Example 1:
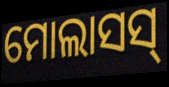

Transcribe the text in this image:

ମୋଲାସସ୍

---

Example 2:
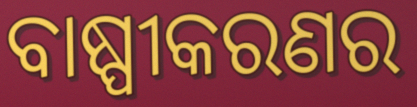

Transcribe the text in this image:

ବାଷ୍ପୀକରଣର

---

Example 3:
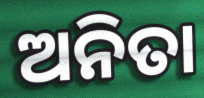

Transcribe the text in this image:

ଅନିତା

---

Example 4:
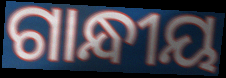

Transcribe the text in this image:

ଗାନ୍ଧୀୟ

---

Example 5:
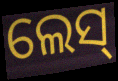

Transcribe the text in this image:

ଲେସ୍